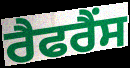
ਰੈਫਰੈਂਸ